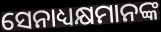
ସେନାଧ୍ୟକ୍ଷମାନଙ୍କ